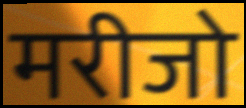
मरीजो